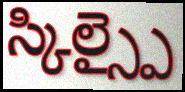
స్కిల్స్పై